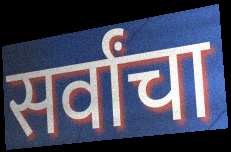
सर्वांचा